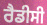
ਰੈਡੀਸੀ